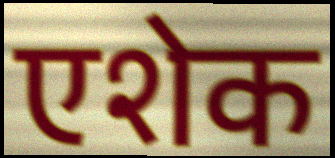
एशेक